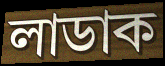
লাডাক